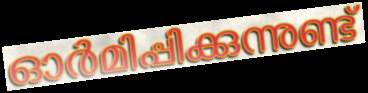
ഓർമിപ്പിക്കുന്നുണ്ട്